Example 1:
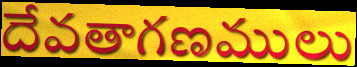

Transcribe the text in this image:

దేవతాగణములు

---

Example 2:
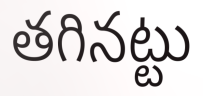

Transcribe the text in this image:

తగినట్టు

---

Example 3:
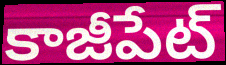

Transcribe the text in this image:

కాజీపేట్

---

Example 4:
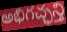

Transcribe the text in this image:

అభిగచ్ఛన్తి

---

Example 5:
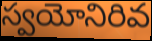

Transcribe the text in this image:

స్వయోనిరివ